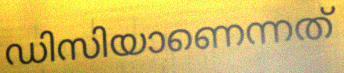
ഡിസിയാണെന്നത്